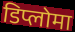
डिप्लोमा